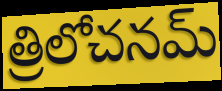
త్రిలోచనమ్